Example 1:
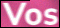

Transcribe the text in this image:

Vos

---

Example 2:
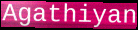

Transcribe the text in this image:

Agathiyan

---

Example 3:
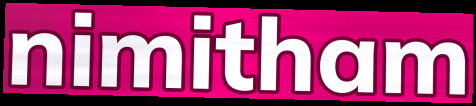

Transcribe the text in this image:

nimitham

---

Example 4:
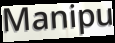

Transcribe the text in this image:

Manipu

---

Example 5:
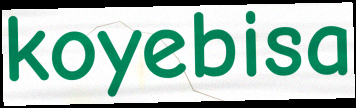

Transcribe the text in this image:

koyebisa